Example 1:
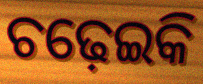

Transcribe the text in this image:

ଚଢ଼େଇକି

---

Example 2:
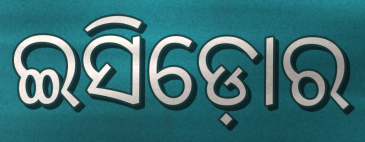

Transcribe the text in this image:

ଇସିଡ଼ୋର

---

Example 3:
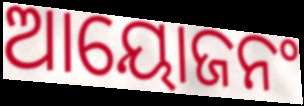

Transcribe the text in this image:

ଆୟୋଜନଂ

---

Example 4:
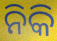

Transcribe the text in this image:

ନିକି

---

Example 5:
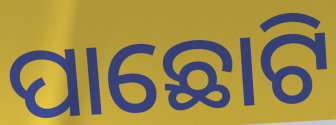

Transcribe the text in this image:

ପାଛୋଟି